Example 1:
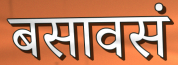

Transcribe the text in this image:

बसावसं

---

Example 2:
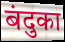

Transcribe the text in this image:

बंदुका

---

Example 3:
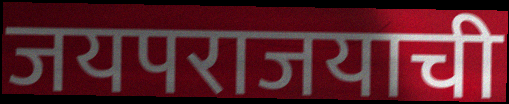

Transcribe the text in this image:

जयपराजयाची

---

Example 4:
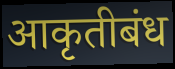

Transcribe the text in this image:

आकृतीबंध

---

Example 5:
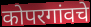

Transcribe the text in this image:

कोपरगांवचे